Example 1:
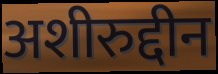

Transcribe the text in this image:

अशीरुद्दीन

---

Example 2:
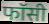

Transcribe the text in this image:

फॉसी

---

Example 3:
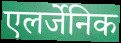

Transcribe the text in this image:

एलर्जेनिक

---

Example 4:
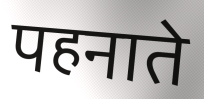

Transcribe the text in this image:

पहनाते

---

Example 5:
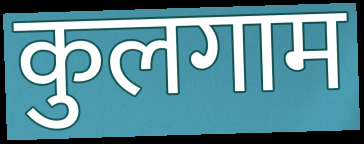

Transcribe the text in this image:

कुलगाम